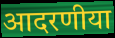
आदरणीया